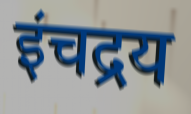
इंचद्रय